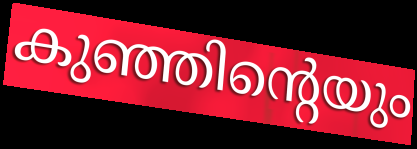
കുഞ്ഞിന്റെയും